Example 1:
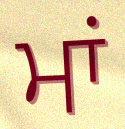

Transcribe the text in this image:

ਮਾਂ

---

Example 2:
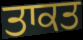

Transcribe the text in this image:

ਤਾਕਤ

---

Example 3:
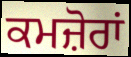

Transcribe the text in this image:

ਕਮਜ਼ੋਰਾਂ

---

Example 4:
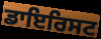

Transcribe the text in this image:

ਡਾਇਰਿਸਟ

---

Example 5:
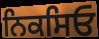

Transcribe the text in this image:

ਨਿਕਸਿਓ